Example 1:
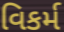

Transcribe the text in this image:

વિકર્મ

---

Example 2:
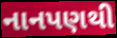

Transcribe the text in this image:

નાનપણથી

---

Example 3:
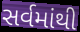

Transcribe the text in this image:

સર્વમાંથી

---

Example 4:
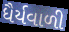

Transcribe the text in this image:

ધૈર્યવાળી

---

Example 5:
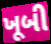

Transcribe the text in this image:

ખૂબી